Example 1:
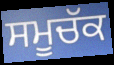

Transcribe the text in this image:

ਸਮੂਚੱਕ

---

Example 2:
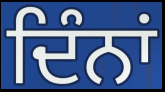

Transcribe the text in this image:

ਦਿੰਨਾਂ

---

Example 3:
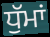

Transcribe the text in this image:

ਧੁੱਮਾਂ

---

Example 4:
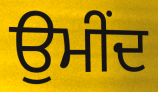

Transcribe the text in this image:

ਉਮੀਂਦ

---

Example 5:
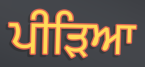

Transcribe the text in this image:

ਪੀੜਿਆ